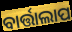
ବାର୍ତ୍ତାଲାପ